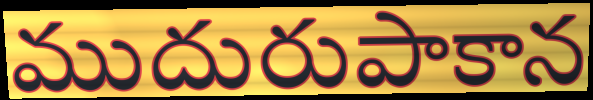
ముదురుపాకాన